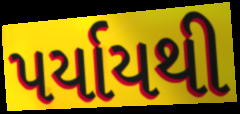
પર્યાયથી